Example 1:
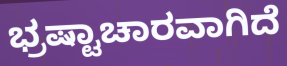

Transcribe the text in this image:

ಭ್ರಷ್ಟಾಚಾರವಾಗಿದೆ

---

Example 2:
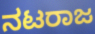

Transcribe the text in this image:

ನಟರಾಜ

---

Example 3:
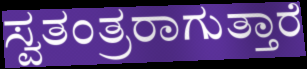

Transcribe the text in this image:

ಸ್ವತಂತ್ರರಾಗುತ್ತಾರೆ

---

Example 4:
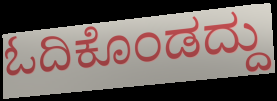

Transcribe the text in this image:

ಓದಿಕೊಂಡದ್ದು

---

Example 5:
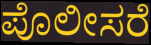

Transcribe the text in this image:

ಪೊಲೀಸರೆ